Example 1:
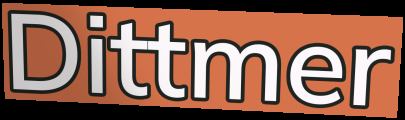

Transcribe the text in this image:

Dittmer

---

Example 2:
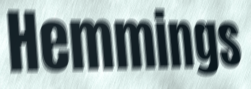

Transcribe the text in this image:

Hemmings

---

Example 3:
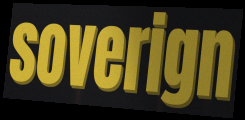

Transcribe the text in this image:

soverign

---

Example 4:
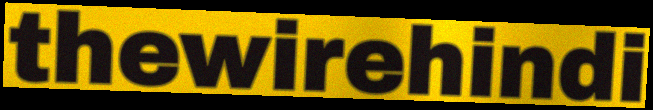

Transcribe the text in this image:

thewirehindi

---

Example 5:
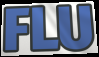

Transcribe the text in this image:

FLU